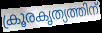
ക്രൂരകൃത്യത്തിന്